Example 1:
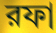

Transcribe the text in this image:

রফা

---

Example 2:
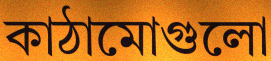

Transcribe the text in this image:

কাঠামোগুলো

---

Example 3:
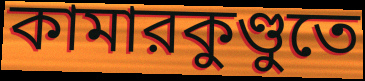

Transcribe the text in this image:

কামারকুণ্ডুতে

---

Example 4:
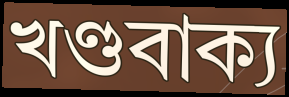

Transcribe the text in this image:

খণ্ডবাক্য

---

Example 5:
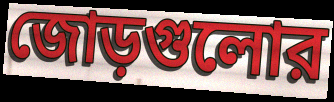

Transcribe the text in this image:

জোড়গুলোর